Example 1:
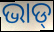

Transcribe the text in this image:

ଭାଡ୍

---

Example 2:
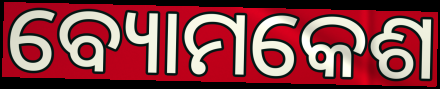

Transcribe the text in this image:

ବ୍ୟୋମକେଶ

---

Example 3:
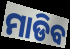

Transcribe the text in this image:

ମାଡିବ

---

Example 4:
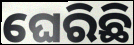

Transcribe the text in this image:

ଘେରିଛି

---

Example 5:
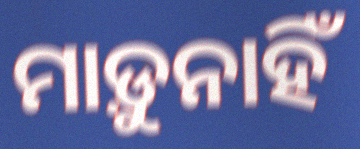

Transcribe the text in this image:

ମାଡ଼ୁନାହିଁ